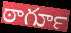
ఠాగూర్‍